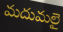
మదుమలై